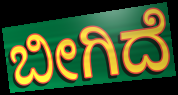
ಬೀಗಿದೆ